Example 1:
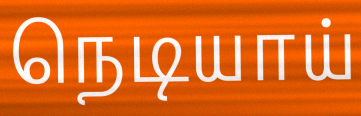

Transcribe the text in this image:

நெடியாய்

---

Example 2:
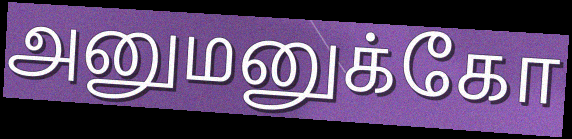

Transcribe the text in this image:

அனுமனுக்கோ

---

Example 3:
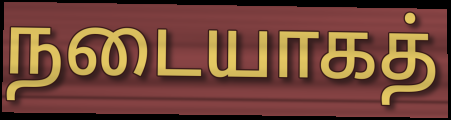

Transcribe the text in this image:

நடையாகத்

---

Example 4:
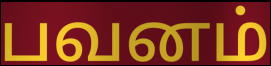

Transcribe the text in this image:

பவனம்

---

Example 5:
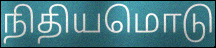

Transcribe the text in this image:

நிதியமொடு